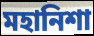
মহানিশা